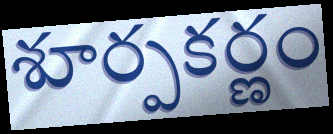
శూర్పకర్ణం